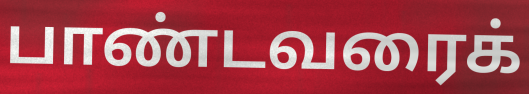
பாண்டவரைக்